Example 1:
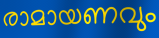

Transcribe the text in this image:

രാമായണവും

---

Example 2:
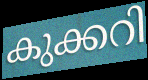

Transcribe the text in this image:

കുക്കറി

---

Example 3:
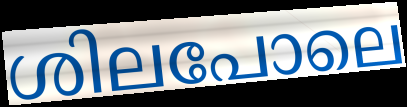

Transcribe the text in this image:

ശിലപോലെ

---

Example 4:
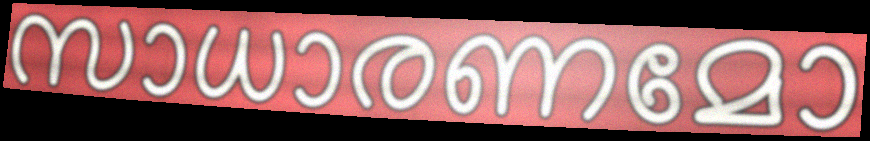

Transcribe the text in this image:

സാധാരണമോ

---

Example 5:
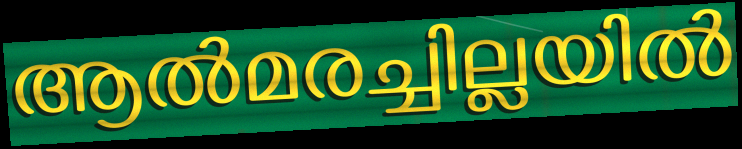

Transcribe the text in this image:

ആൽമരച്ചില്ലയിൽ